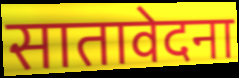
सातावेदना